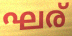
ഘര്